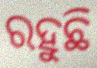
ରହୁଛି